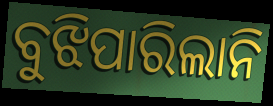
ବୁଝିପାରିଲାନି